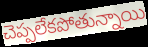
చెప్పలేకపోతున్నాయి